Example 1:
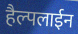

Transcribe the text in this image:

हैल्पलाईन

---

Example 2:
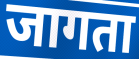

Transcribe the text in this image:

जागता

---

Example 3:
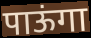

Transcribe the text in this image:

पाऊंगा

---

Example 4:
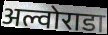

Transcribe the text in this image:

अल्वोराडा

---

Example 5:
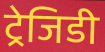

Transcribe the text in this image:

ट्रेजिडी